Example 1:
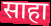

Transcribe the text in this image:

साहा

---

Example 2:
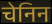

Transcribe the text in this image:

चेनिन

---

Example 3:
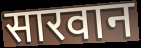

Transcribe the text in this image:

सारवान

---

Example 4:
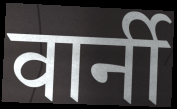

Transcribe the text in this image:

वार्नी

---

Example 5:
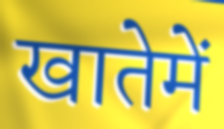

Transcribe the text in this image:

खातेमें